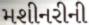
મશીનરીની